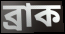
ব্রাক